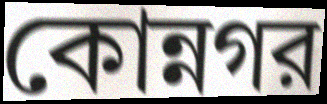
কোন্নগর